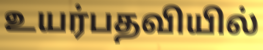
உயர்பதவியில்